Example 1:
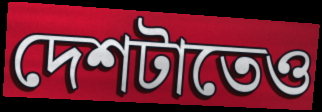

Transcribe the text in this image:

দেশটাতেও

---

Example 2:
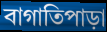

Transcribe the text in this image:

বাগাতিপাড়া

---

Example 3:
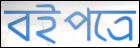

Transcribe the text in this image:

বইপত্রে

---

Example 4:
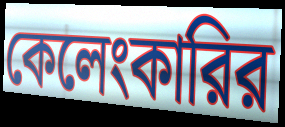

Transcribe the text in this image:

কেলেংকারির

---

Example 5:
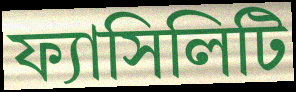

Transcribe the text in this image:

ফ্যাসিলিটি